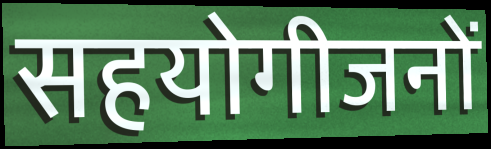
सहयोगीजनों